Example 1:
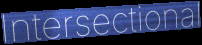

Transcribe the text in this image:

Intersectional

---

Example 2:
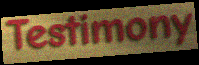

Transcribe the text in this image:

Testimony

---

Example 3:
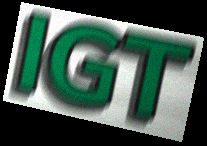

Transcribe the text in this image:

IGT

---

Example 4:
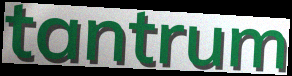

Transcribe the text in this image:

tantrum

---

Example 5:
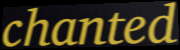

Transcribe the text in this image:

chanted